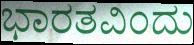
ಭಾರತವಿಂದು